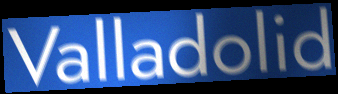
Valladolid